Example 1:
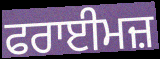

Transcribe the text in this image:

ਫਰਾਈਮਜ਼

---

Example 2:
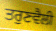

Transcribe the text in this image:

ਤਰੁਣਵੈਲੀ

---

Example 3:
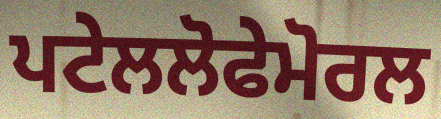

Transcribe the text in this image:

ਪਟੇਲਲੋਫੇਮੋਰਲ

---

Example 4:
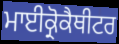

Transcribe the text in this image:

ਮਾਈਕ੍ਰੋਕੈਥੀਟਰ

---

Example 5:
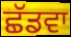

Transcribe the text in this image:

ਛੱਡਵਾ